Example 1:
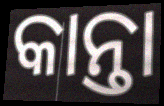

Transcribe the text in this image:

କାନ୍ତା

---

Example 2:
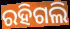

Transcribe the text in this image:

ରହିଗଲି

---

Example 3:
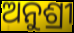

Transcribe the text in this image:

ଅନୁଶ୍ରୀ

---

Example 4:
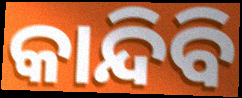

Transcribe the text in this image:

କାନ୍ଦିବି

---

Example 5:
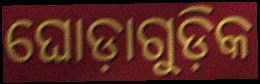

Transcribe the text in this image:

ଘୋଡ଼ାଗୁଡ଼ିକ